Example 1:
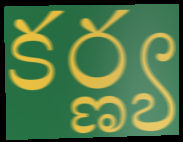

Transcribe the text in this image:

కర్ణ్య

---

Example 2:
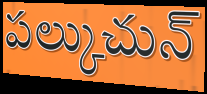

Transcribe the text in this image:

పల్కుచున్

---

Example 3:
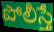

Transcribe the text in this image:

పోలీస్తే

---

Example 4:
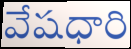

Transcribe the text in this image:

వేషధారి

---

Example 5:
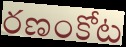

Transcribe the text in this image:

రణంకోట